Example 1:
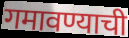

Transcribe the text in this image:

गमावण्याची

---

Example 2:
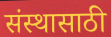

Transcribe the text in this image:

संस्थासाठी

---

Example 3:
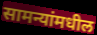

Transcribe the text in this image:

सामन्यांमधील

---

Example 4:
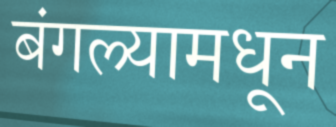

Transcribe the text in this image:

बंगल्यामधून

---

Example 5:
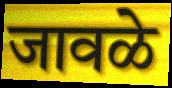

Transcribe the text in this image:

जावळे